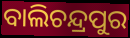
ବାଲିଚନ୍ଦ୍ରପୁର